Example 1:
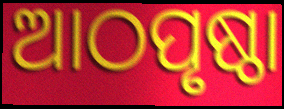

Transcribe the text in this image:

ଆଠପୃଷ୍ଠା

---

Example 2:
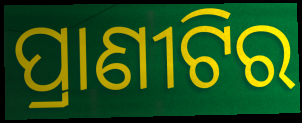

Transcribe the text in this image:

ପ୍ରାଣୀଟିର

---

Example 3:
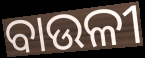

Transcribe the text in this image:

ବାଉଳୀ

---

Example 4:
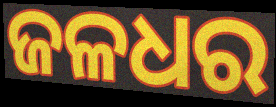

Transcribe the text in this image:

ଜଳଧର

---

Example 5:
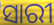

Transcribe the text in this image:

ସାରୀ